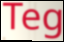
Teg